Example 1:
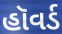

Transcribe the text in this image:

હૉવર્ડ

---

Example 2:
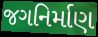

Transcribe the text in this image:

જગનિર્માણ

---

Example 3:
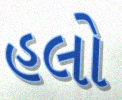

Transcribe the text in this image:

હલો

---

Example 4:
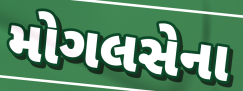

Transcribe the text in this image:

મોગલસેના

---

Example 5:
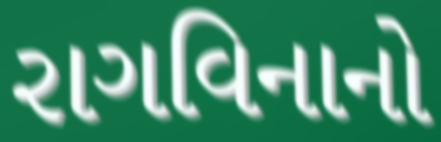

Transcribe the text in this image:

રાગવિનાનો